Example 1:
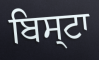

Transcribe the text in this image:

ਬਿਸ੍ਟਾ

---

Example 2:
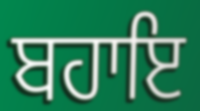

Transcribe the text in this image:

ਬਹਾਇ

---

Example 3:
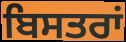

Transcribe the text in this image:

ਬਿਸਤਰਾਂ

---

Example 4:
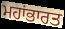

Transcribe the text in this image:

ਮਹਾਂਭਾਰਤ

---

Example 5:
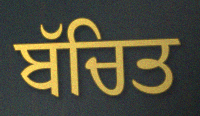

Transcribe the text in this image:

ਬੱਚਿਤ